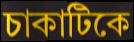
চাকাটিকে